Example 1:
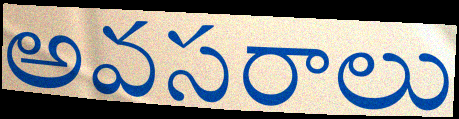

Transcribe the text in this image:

అవసరాలు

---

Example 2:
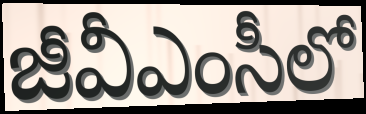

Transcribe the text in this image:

జీవీఎంసీలో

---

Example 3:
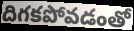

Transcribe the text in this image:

దిగకపోవడంతో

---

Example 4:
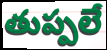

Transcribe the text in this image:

తుప్పలే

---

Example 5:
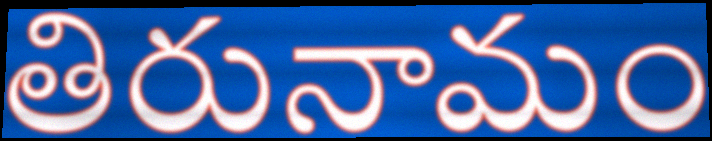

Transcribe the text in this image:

తిరునామం